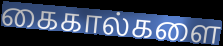
கைகால்களை